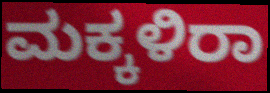
ಮಕ್ಕಳಿರಾ